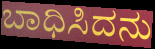
ಬಾಧಿಸಿದನು